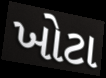
ખોટા